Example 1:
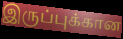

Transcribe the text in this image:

இருப்புக்கான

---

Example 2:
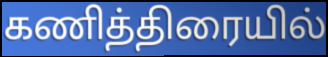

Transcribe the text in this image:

கணித்திரையில்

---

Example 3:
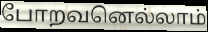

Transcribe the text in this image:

போறவனெல்லாம்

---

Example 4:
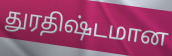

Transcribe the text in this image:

துரதிஷ்டமான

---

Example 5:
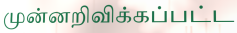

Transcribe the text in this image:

முன்னறிவிக்கப்பட்ட